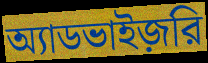
অ্যাডভাইজ়রি